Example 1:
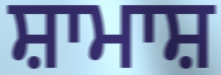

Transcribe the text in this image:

ਸ਼ਾਮਾਸ਼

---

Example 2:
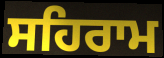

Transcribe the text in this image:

ਸਹਿਰਾਮ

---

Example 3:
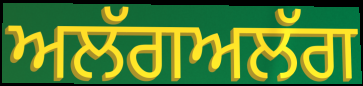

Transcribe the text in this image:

ਅਲੱਗਅਲੱਗ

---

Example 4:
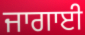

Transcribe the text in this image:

ਜਾਗਾਈ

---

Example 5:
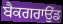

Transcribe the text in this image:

ਬੈਕਗਰਾਉਂਡ